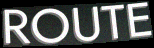
ROUTE